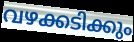
വഴക്കടിക്കും